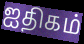
ஐதிகம்